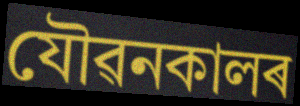
যৌৱনকালৰ